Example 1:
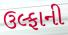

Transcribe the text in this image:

ઉલ્ફાની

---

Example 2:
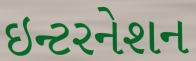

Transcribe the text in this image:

ઇન્ટરનેશન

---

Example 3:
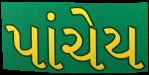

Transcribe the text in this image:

પાંચેય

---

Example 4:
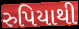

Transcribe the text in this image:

રુપિયાથી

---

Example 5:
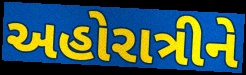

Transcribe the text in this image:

અહોરાત્રીને